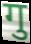
गु